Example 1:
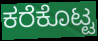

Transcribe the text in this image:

ಕರೆಕೊಟ್ಟ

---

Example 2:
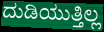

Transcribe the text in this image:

ದುಡಿಯುತ್ತಿಲ್ಲ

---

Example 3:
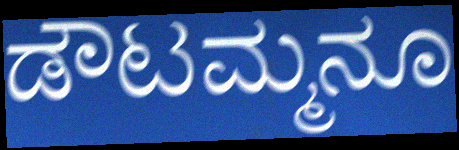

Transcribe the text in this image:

ಡೌಟಮ್ಮನೂ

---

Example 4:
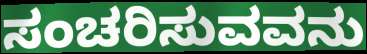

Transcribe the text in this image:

ಸಂಚರಿಸುವವನು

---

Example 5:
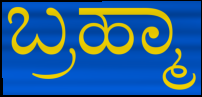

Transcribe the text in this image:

ಬ್ರಹ್ಮಾ